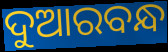
ଦୁଆରବନ୍ଧ